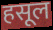
हसूल